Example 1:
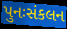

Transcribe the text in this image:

પુનઃસંકલન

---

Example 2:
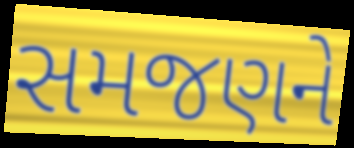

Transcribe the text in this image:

સમજણને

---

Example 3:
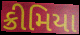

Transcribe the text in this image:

ક્રીમિયા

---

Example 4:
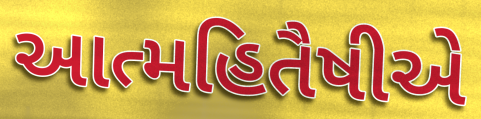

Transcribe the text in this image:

આત્મહિતૈષીએ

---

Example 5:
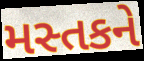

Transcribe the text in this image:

મસ્તકને